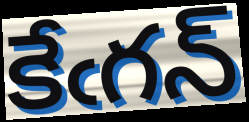
కేఁగన్